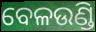
ବେଳଉଣ୍ଡି